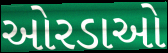
ઓરડાઓ